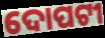
ଦୋପଟୀ